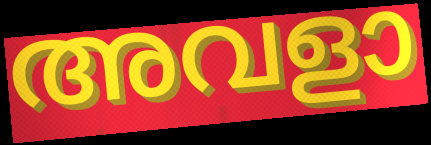
അവളാ